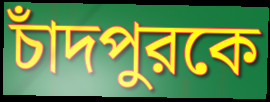
চাঁদপুরকে